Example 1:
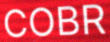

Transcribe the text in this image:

COBR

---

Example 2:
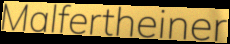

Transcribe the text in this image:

Malfertheiner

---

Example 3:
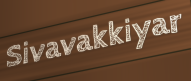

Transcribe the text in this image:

Sivavakkiyar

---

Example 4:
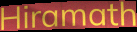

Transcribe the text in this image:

Hiramath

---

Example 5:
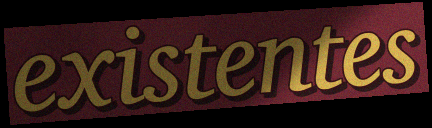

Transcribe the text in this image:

existentes